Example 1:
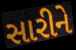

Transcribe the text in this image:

સારીને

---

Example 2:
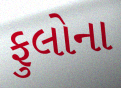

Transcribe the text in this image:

ફુલોના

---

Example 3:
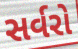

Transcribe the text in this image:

સર્વરો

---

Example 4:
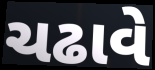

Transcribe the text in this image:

ચઢાવે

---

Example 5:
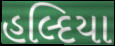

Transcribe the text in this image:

હલ્દિયા